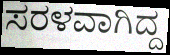
ಸರಳವಾಗಿದ್ದ